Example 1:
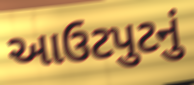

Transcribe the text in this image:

આઉટપુટનું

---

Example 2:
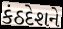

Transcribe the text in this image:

કંઠદેશને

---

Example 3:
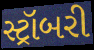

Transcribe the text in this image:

સ્ટ્રૉબરી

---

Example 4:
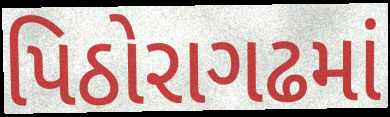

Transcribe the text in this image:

પિઠોરાગઢમાં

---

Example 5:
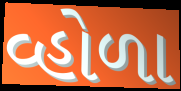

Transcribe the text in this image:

વ્હોળા